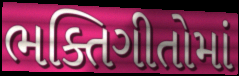
ભક્તિગીતોમાં